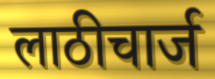
लाठीचार्ज